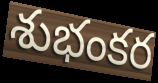
శుభంకర